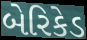
બેરિકેડ